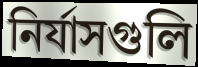
নির্যাসগুলি